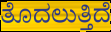
ತೊದಲುತ್ತಿದೆ